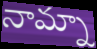
నామ్నా